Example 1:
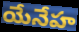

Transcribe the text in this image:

యేనేహ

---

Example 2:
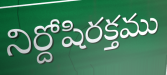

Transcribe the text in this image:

నిర్దోషిరక్తము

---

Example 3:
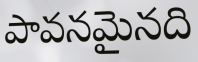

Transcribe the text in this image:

పావనమైనది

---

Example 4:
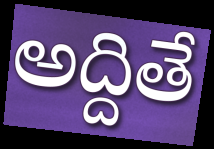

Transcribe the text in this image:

అద్దితే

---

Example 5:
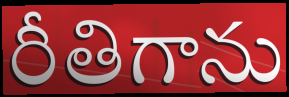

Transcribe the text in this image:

రీతిగాను